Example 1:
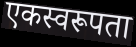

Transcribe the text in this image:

एकस्वरूपता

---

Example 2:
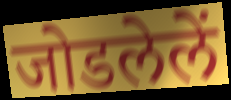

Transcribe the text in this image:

जोडलेलें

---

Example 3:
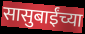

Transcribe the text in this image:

सासुबाईंच्या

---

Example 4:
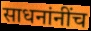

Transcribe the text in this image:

साधनांनींच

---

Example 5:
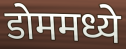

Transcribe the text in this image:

डोममध्ये